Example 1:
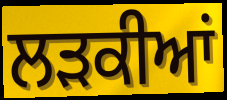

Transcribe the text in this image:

ਲੜਕੀਆਂ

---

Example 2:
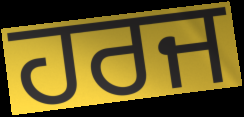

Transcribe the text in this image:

ਹਰਜ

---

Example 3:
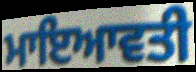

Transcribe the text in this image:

ਮਾਇਆਵਤੀ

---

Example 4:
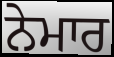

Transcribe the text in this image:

ਨੇਮਾਰ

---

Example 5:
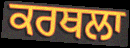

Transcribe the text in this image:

ਕਰਥਲਾ